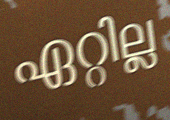
ഏറ്റില്ല